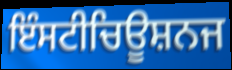
ਇੰਸਟੀਚਿਊਸ਼ਨਜ